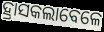
ହ୍ରାସକଲାବେଳେ